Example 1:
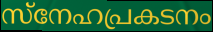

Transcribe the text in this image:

സ്നേഹപ്രകടനം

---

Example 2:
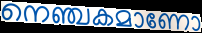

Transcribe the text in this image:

നെഞ്ചകമാണോ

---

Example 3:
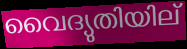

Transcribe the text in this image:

വൈദ്യുതിയില്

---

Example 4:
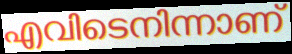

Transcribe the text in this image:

എവിടെനിന്നാണ്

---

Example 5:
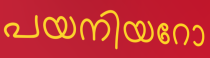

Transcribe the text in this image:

പയനിയറോ